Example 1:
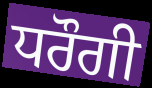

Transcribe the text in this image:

ਧਰੌਗੀ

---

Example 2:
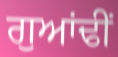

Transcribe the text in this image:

ਗੁਆਂਢੀਂ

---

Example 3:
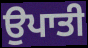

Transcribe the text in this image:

ਉਪਾਤੀ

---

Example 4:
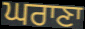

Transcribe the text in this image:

ਘਰਾਣਾ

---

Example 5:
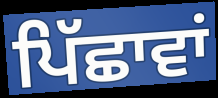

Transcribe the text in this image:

ਪਿੱਛਾਵਾਂ